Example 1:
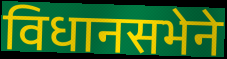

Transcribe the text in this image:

विधानसभेने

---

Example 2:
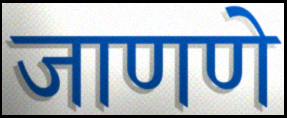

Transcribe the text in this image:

जाणणे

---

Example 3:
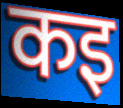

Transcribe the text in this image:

कइ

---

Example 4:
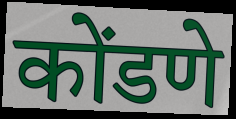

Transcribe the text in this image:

कोंडणे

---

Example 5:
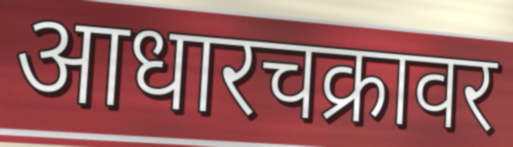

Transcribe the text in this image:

आधारचक्रावर